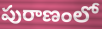
పురాణంలో